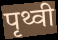
पृथ्‍वी